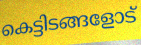
കെട്ടിടങ്ങളോട്